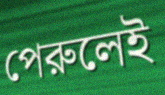
পেরুলেই